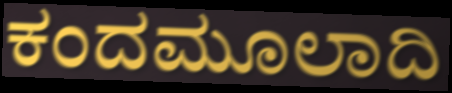
ಕಂದಮೂಲಾದಿ